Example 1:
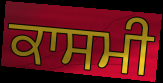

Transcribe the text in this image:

ਕਾਸਮੀ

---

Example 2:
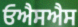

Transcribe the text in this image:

ਓਐਸਐਸ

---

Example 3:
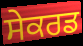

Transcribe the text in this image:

ਸੇਕਰਡ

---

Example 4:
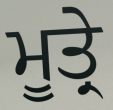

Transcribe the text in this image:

ਮੂਤ੍ਰੇ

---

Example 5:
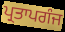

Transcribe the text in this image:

ਪ੍ਰਤਾਪਗੰਜ